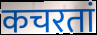
कचरतां